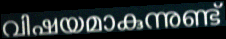
വിഷയമാകുന്നുണ്ട്